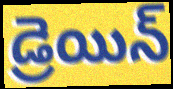
డ్రెయిన్